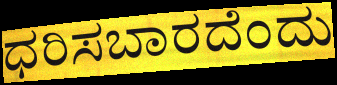
ಧರಿಸಬಾರದೆಂದು